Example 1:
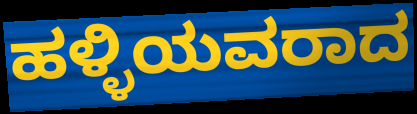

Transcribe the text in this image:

ಹಳ್ಳಿಯವರಾದ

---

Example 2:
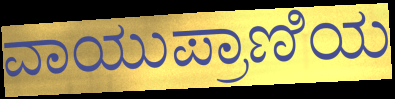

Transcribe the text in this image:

ವಾಯುಪ್ರಾಣಿಯ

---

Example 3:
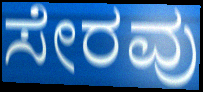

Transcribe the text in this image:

ಸೇರವು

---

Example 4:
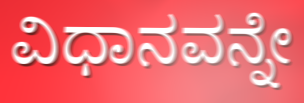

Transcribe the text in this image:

ವಿಧಾನವನ್ನೇ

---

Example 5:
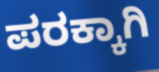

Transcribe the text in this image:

ಪರಕ್ಕಾಗಿ